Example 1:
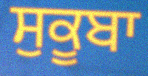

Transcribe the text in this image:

ਸੁਕੂਬਾ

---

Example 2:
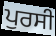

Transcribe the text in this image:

ਪੁਰਸੀ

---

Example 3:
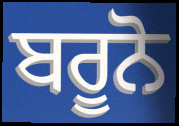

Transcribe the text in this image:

ਬਰੂਨੋ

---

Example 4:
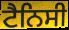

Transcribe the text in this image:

ਟੈਨਿਸੀ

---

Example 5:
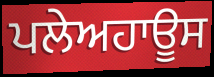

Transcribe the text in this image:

ਪਲੇਅਹਾਊਸ